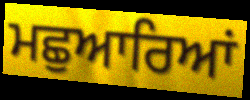
ਮਛੁਆਰਿਆਂ